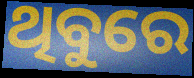
ଥିବୁରେ